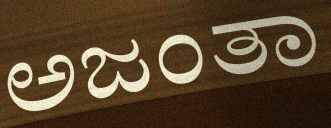
ಅಜಂತಾ